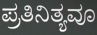
ಪ್ರತಿನಿತ್ಯವೂ